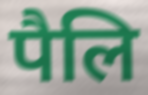
पैलि